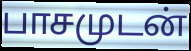
பாசமுடன்